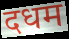
दधम